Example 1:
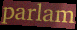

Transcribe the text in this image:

parlam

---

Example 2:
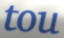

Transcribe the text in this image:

tou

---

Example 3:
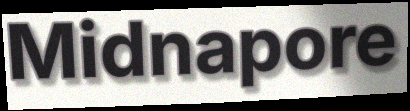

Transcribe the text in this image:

Midnapore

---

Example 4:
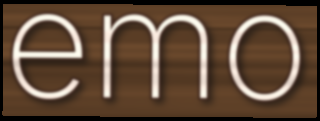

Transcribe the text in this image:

emo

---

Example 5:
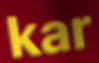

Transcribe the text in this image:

kar